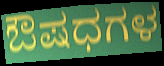
ಔಷಧಗಳ